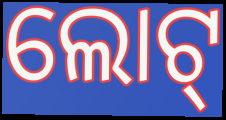
ଲୋଟ୍